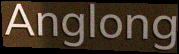
Anglong